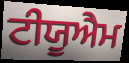
ਟੀਯੂਐਮ